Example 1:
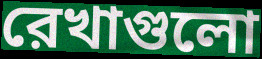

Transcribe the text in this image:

রেখাগুলো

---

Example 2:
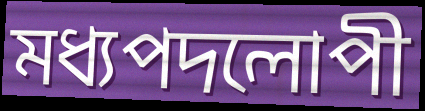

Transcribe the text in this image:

মধ্যপদলোপী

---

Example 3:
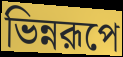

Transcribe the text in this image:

ভিন্নরূপে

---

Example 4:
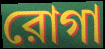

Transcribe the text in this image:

রোগা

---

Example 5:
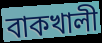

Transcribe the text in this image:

বাকখালী